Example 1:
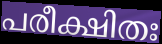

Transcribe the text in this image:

പരീക്ഷിതഃ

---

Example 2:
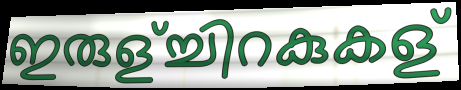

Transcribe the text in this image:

ഇരുള്ച്ചിറകുകള്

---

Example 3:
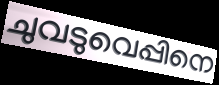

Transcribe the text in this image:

ചുവടുവെപ്പിനെ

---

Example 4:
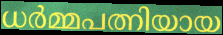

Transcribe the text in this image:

ധർമ്മപത്നിയായ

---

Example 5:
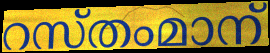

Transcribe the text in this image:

റസ്തംമാന്